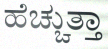
ಹೆಚ್ಚುತ್ತಾ